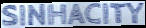
SINHACITY